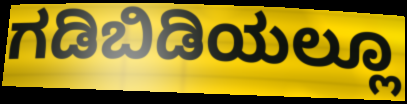
ಗಡಿಬಿಡಿಯಲ್ಲೂ